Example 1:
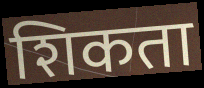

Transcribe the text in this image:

शिकता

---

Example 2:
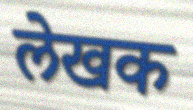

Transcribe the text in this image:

लेखक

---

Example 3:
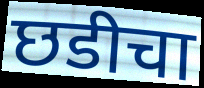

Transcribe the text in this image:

छडीचा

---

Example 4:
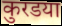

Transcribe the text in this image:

कुरडया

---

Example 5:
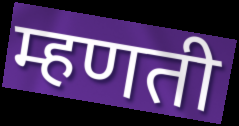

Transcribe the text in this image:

म्हणती